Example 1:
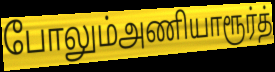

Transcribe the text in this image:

போலும்அணியாரூர்த்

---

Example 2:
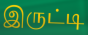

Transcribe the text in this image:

இருட்டி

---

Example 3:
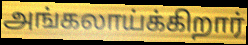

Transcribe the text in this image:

அங்கலாய்க்கிறார்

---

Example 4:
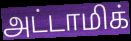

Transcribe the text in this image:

அட்டாமிக்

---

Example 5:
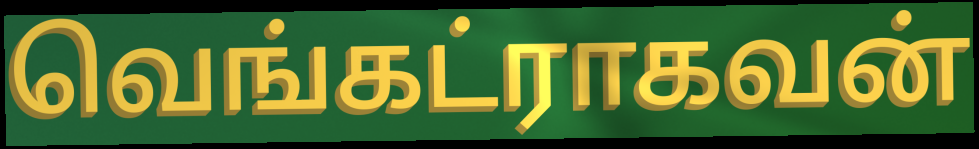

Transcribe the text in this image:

வெங்கட்ராகவன்